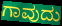
ಗಾವುದು